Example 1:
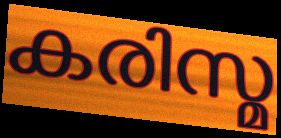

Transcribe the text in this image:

കരിസ്മ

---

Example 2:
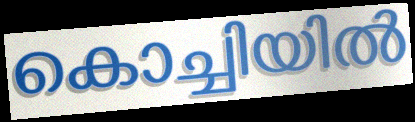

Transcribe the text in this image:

കൊച്ചിയിൽ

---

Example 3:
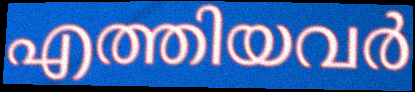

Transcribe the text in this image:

എത്തിയവർ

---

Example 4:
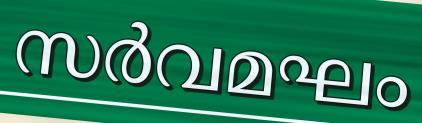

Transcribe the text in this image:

സർവമഘം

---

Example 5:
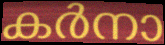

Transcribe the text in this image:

കർനാ